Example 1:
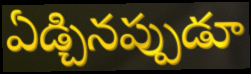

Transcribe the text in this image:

ఏడ్చినప్పుడూ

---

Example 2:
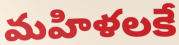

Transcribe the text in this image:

మహిళలకే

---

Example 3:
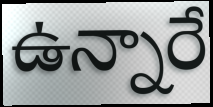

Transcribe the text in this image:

ఉన్నారే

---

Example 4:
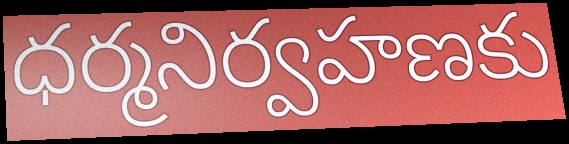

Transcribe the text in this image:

ధర్మనిర్వహణకు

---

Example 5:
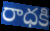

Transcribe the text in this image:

రాధకి